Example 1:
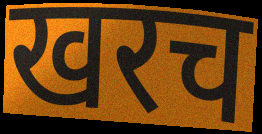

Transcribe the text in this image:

खरच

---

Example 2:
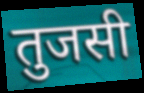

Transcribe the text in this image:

तुजसी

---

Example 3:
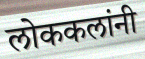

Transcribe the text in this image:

लोककलांनी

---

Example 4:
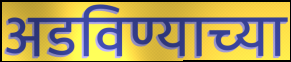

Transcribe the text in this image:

अडविण्याच्या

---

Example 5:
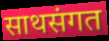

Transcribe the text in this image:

साथसंगत